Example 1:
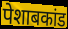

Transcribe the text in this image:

पेशाबकांड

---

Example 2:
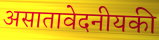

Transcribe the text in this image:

असातावेदनीयकी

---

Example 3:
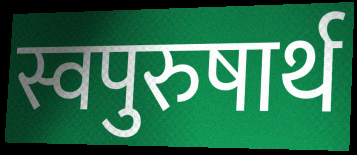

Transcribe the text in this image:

स्वपुरुषार्थ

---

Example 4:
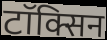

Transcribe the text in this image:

टॉक्सिन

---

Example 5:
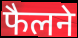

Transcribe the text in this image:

फैलने